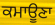
ਕਮਾਊਣਾ